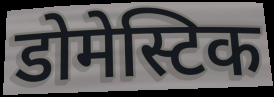
डोमेस्टिक